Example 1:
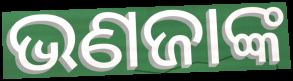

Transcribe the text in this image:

ଭଣଜାଙ୍କ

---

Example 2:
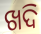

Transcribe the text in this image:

ଖଦି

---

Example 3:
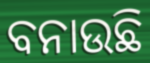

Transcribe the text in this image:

ବନାଉଛି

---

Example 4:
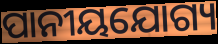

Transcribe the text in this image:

ପାନୀୟଯୋଗ୍ୟ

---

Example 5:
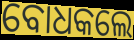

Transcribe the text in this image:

ବୋଧକଲେ